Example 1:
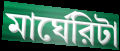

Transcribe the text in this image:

মার্ঘেরিটা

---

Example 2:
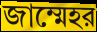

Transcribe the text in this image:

জাম্মেহর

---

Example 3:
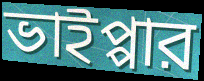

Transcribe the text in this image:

ভাইপ্পার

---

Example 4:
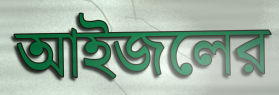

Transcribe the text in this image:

আইজলের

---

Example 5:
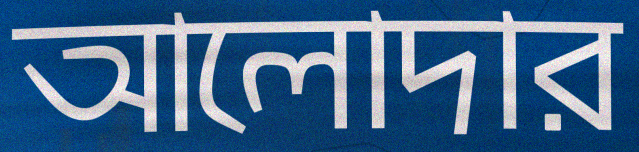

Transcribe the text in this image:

আলোদার